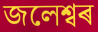
জলেশ্বৰ